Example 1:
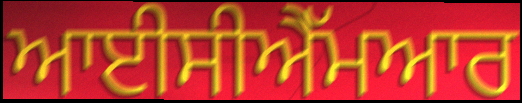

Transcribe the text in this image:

ਆਈਸੀਐੱਮਆਰ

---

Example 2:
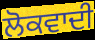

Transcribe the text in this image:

ਲੋਕਵਾਦੀ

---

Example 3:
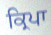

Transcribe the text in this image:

ਕ੍ਰਿਪਾ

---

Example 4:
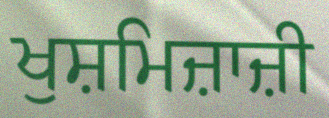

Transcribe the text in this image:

ਖੁਸ਼ਮਿਜ਼ਾਜ਼ੀ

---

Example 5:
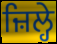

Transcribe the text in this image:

ਜ਼ਿਲ੍ਹੇ